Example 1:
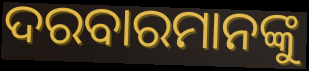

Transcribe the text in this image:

ଦରବାରମାନଙ୍କୁ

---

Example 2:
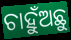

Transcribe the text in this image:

ଚାହୁଁଅଛୁ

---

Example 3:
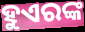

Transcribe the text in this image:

ହୁଏରଙ୍କ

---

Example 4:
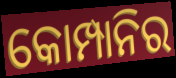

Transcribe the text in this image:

କୋମ୍ପାନିର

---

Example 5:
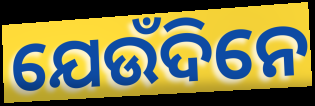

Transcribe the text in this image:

ଯେଉଁଦିନେ